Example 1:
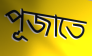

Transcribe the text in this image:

পূজাতে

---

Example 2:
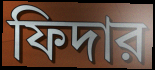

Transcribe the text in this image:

ফিদার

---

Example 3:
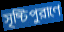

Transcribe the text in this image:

সৃষ্টিপুরাণে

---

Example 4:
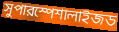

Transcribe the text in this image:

সুপারস্পেশালাইজড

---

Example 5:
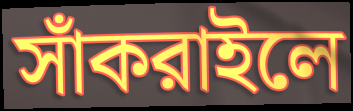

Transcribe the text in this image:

সাঁকরাইলে